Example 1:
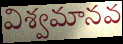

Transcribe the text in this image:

విశ్వమానవ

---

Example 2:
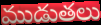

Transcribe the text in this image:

ముడుతలు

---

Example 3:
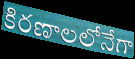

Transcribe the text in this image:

కిరణాలలోనేగా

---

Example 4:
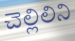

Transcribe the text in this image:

చెల్లిలిని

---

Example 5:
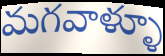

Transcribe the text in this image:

మగవాళ్ళూ